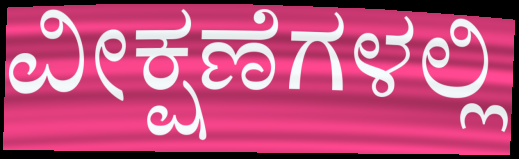
ವೀಕ್ಷಣೆಗಳಲ್ಲಿ